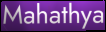
Mahathya